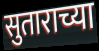
सुताराच्या